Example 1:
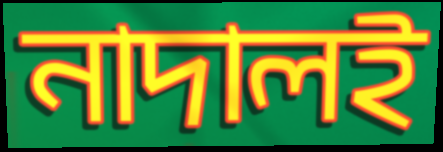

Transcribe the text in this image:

নাদালই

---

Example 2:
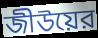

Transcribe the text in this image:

জীউয়ের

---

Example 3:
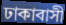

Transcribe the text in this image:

ঢাকাবাসী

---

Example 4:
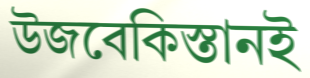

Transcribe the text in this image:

উজবেকিস্তানই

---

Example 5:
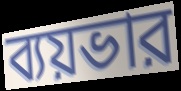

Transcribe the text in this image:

ব্যয়ভার